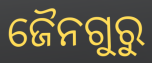
ଜୈନଗୁରୁ